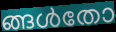
ങ്ങൾതോ